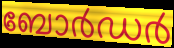
ബോർഡർ